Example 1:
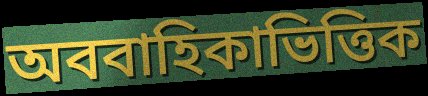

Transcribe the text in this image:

অববাহিকাভিত্তিক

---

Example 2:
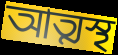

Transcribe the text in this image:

আত্মস্থ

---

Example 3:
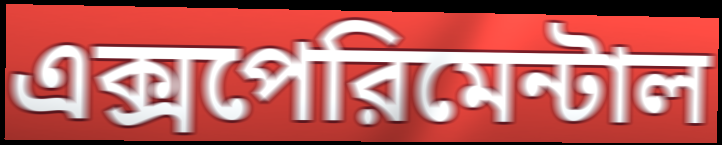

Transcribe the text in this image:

এক্সপেরিমেন্টাল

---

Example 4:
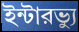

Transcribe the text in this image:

ইন্টারভ্যু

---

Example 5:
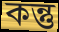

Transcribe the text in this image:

কন্তু